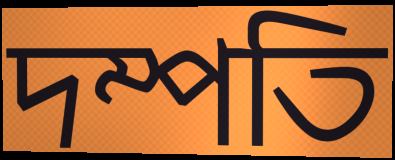
দম্পতি